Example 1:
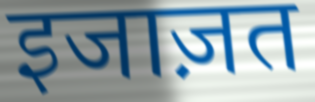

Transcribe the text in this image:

इजाज़त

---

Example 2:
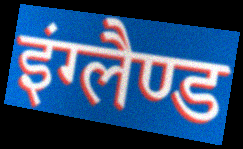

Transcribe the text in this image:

इंग्‍लैण्‍ड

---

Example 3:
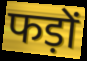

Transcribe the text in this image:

फड़ों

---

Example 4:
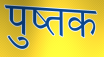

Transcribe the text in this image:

पुष्तक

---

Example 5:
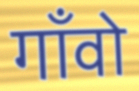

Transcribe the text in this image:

गाँवो